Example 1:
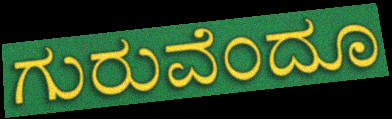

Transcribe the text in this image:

ಗುರುವೆಂದೂ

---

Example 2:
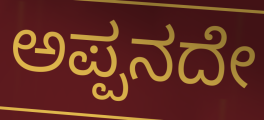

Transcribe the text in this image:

ಅಪ್ಪನದೇ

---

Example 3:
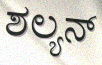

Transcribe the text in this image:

ಶಲ್ಯನ್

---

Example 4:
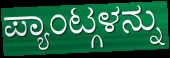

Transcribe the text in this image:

ಪ್ಯಾಂಟ್ಗಳನ್ನು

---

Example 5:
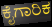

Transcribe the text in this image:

ಕೈಗಾರಿಕ